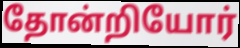
தோன்றியோர்